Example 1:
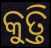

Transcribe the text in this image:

କୁତ୍ତି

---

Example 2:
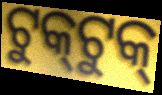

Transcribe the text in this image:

ଟୁକ୍‌ଟୁକ୍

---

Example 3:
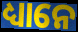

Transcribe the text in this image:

ଧ୍ୟାନେ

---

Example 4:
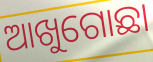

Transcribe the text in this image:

ଆଖୁଗୋଛା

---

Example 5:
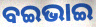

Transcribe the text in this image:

ବଇଭାଇ